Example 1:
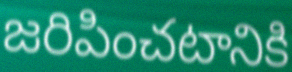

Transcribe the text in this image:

జరిపించటానికి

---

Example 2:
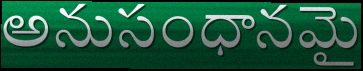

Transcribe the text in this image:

అనుసంధానమై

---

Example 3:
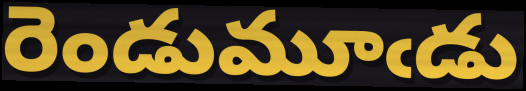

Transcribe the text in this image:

రెండుమూఁడు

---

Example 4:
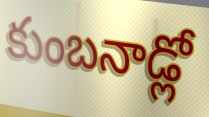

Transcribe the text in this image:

కుంబనాడ్లో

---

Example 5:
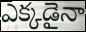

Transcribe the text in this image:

ఎక్కడైనా